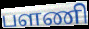
பளணி